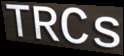
TRCs